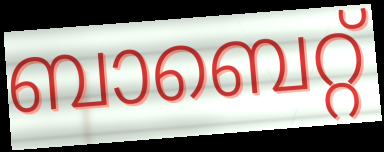
ബാബെറ്റ്